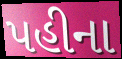
પહીના